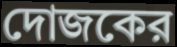
দোজকের